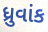
ધ્રુવાંક